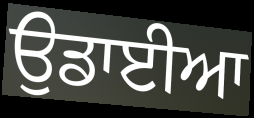
ਉਡਾਈਆ